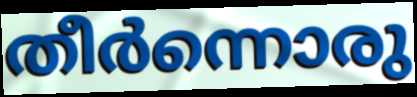
തീർന്നൊരു